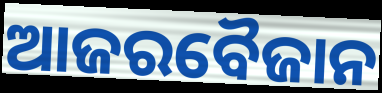
ଆଜରବୈଜାନ